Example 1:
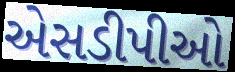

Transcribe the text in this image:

એસડીપીઓ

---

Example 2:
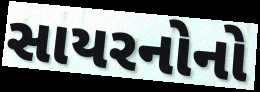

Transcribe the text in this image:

સાયરનોનો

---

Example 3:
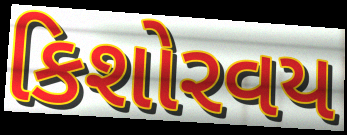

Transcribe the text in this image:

કિશોરવય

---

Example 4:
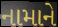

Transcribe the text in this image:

નામાને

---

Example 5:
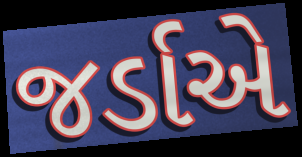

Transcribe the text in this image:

જર્ડાએ